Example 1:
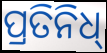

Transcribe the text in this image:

ପ୍ରତିନିଧ୍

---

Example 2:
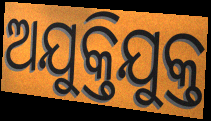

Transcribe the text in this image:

ଅଯୁକ୍ତିଯୁକ୍ତ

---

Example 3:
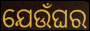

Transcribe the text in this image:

ଯେଉଁଘର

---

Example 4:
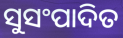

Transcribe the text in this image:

ସୁସଂପାଦିତ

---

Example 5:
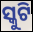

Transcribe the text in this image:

ସ୍କୁଟି